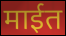
माईत